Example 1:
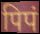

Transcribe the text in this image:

पिपं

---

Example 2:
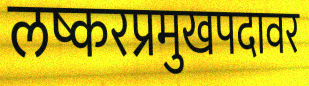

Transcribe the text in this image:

लष्करप्रमुखपदावर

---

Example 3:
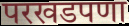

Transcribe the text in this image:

परखडपणा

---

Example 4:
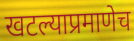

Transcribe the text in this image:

खटल्याप्रमाणेच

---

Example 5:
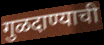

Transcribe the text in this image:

गुळदाण्याची